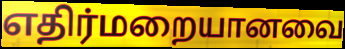
எதிர்மறையானவை